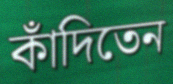
কাঁদিতেন